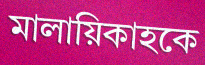
মালায়িকাহকে